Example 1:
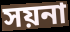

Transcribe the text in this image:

সয়না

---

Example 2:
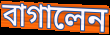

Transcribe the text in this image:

বাগালেন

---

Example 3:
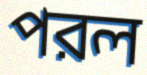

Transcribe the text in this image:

পরল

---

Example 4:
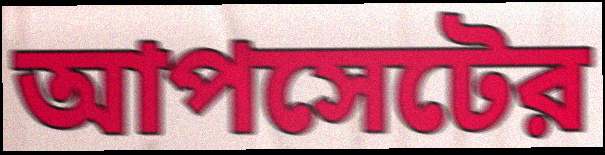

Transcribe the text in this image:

আপসেটের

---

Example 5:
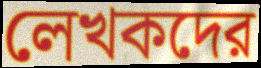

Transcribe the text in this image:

লেখকদের